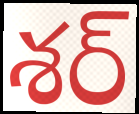
శర్